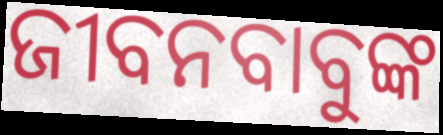
ଜୀବନବାବୁଙ୍କ